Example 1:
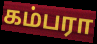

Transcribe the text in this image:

கம்பரா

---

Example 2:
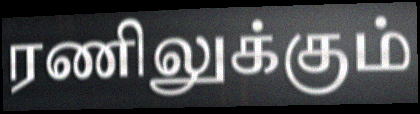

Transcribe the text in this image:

ரணிலுக்கும்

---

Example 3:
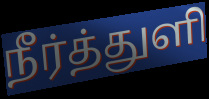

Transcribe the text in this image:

நீர்த்துளி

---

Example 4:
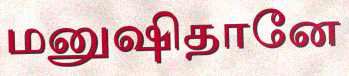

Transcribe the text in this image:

மனுஷிதானே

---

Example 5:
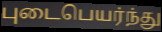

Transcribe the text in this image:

புடைபெயர்ந்து